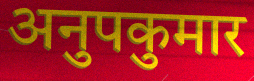
अनुपकुमार